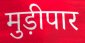
मुड़ीपार